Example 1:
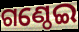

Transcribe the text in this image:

ଗଣ୍ଠେଇ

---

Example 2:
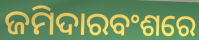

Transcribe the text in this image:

ଜମିଦାରବଂଶରେ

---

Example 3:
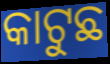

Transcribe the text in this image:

କାଟୁଛ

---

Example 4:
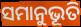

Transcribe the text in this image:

ସମାନୁଭୂତି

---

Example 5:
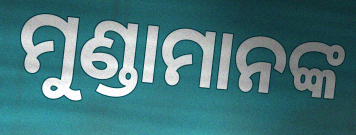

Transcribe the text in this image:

ମୁଣ୍ଡାମାନଙ୍କ